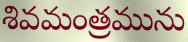
శివమంత్రమును